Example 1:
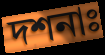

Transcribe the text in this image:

দশনাঃ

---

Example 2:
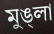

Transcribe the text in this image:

মুঙ্লা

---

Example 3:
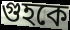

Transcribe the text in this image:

গুহকে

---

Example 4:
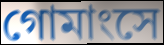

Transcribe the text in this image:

গোমাংসে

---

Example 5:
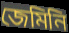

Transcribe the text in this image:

জেমিনি